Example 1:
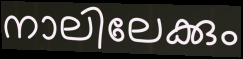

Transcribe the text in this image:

നാലിലേക്കും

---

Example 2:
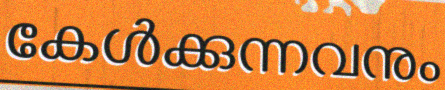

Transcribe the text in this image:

കേൾക്കുന്നവനും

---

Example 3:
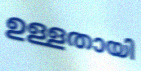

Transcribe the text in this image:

ഉള്ളതായി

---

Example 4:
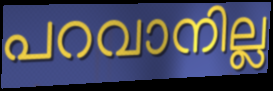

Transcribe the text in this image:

പറവാനില്ല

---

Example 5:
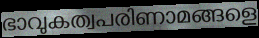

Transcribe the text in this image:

ഭാവുകത്വപരിണാമങ്ങളെ